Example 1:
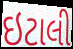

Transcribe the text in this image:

ઇટાલી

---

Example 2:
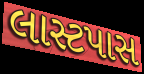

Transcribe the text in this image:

લાસ્ટપાસ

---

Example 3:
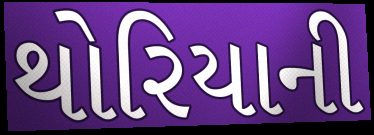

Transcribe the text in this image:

થોરિયાની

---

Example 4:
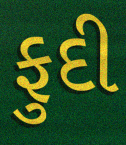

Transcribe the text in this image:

ફુદી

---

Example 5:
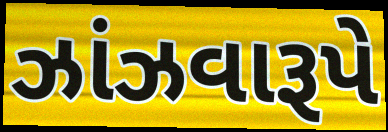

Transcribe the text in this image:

ઝાંઝવારૂપે